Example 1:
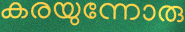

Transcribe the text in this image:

കരയുന്നോരു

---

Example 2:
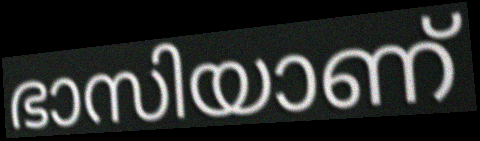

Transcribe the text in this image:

ഭാസിയാണ്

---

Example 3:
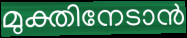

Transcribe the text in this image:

മുക്തിനേടാൻ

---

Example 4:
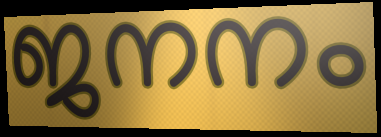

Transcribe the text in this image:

ജനനം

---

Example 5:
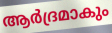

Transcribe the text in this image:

ആർദ്രമാകും